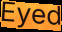
Eyed